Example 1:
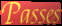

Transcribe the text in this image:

Passes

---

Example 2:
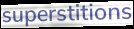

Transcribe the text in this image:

superstitions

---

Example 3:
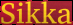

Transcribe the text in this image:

Sikka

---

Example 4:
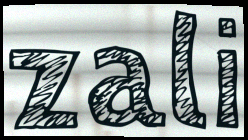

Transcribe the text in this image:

zali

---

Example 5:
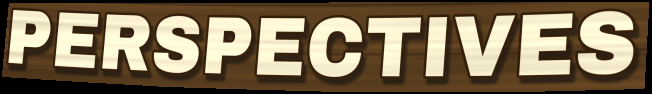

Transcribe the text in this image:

PERSPECTIVES